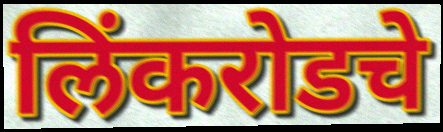
लिंकरोडचे